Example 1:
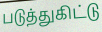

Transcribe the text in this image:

படுத்துகிட்டு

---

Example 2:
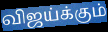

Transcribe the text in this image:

விஜய்க்கும்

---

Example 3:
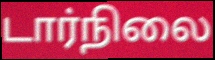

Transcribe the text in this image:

டார்நிலை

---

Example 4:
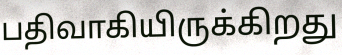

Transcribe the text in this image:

பதிவாகியிருக்கிறது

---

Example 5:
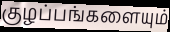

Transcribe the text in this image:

குழப்பங்களையும்